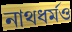
নাথধর্মও